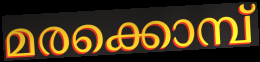
മരക്കൊമ്പ്